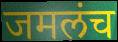
जमलंच